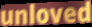
unloved